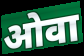
ओवा